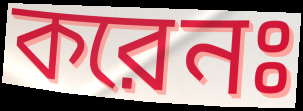
করেনঃ